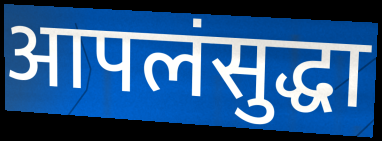
आपलंसुद्धा